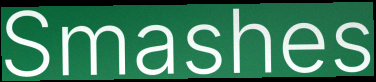
Smashes